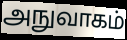
அநுவாகம்